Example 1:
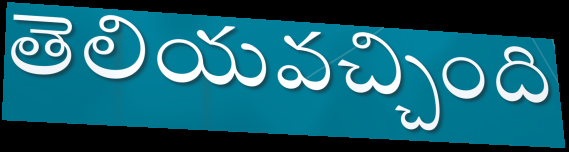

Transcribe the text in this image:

తెలియవచ్చింది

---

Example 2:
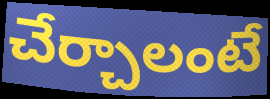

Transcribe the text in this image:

చేర్చాలంటే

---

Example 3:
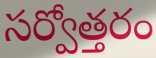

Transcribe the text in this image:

సర్వోత్తరం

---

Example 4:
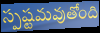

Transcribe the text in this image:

స్పష్టమవుతోంది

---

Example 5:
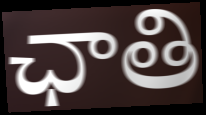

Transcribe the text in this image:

ఛాతి